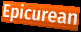
Epicurean